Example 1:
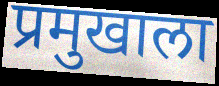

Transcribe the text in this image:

प्रमुखाला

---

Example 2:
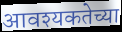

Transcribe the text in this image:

आवश्यकतेच्या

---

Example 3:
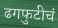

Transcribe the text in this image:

ढगफुटीचं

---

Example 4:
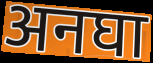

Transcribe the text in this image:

अनघा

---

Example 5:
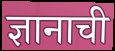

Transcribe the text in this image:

ज्ञानाची